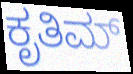
ಕೃತಿಮ್